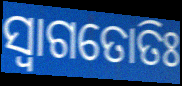
ସ୍ଵାଗତୋତିଃ